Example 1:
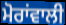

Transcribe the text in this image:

ਮੋਰਾਂਵਾਲੀ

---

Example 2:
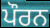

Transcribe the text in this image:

ਪੌਰਨ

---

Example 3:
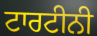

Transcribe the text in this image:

ਟਾਰਟੀਨੀ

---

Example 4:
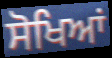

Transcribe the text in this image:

ਸੋਖਿਆਂ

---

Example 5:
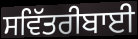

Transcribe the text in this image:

ਸਵਿੱਤਰੀਬਾਈ